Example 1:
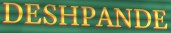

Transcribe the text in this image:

DESHPANDE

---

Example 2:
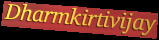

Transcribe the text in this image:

Dharmkirtivijay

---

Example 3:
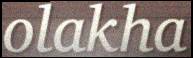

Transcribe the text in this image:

olakha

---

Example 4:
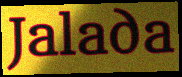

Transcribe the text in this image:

Jalada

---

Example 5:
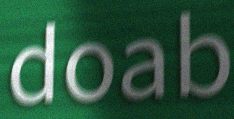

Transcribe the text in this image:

doab